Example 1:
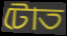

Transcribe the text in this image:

টোত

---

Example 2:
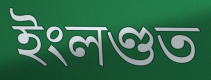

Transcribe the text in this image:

ইংলণ্ডত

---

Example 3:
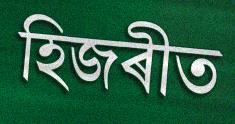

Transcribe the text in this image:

হিজৰীত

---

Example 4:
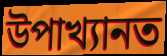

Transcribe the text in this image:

উপাখ্যানত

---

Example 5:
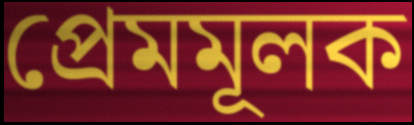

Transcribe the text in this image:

প্ৰেমমূলক